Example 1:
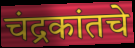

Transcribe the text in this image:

चंद्रकांतचे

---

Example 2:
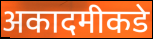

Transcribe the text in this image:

अकादमीकडे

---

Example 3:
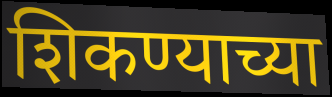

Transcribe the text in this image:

शिकण्याच्या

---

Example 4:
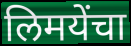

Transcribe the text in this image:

लिमयेंचा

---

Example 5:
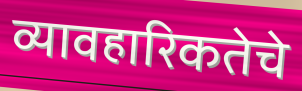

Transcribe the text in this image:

व्यावहारिकतेचे